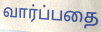
வார்ப்பதை